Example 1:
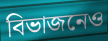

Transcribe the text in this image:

বিভাজনেও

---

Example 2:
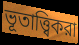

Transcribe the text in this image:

ভূতাত্ত্বিকরা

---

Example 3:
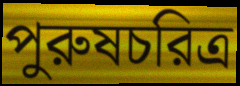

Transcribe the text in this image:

পুরুষচরিত্র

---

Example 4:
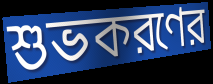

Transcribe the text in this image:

শুভকরণের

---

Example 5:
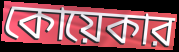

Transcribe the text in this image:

কোয়েকার